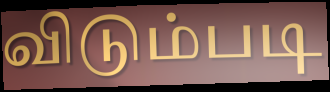
விடும்படி